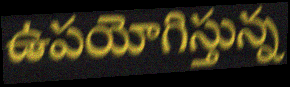
ఉపయోగిస్తున్న